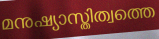
മനുഷ്യാസ്തിത്വത്തെ